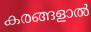
കരങ്ങളാൽ